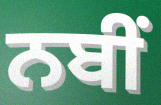
ਨਬੀਂ